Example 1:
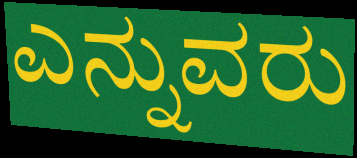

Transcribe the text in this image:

ಎನ್ನುವರು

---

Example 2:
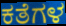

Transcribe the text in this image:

ಕತೆಗಳ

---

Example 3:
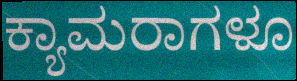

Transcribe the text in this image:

ಕ್ಯಾಮರಾಗಳೂ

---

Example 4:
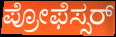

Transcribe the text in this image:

ಪ್ರೋಫೆಸ್ಸರ್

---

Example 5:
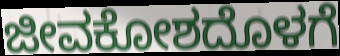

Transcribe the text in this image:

ಜೀವಕೋಶದೊಳಗೆ